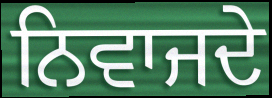
ਨਿਵਾਜਦੇ